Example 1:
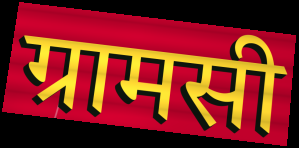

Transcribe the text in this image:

ग्रामसी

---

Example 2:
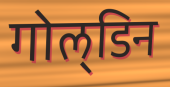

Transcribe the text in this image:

गोल्डिन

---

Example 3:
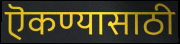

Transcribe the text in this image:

ऎकण्यासाठी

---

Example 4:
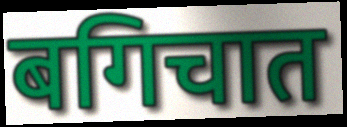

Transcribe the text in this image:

बगिचात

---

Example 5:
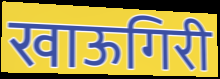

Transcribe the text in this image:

खाऊगिरी